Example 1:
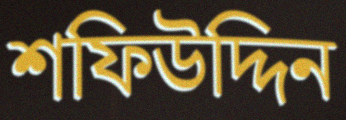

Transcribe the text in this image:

শফিউদ্দিন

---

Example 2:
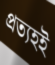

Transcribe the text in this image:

প্রত্যহই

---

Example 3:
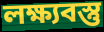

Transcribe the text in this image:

লক্ষ্যবস্তু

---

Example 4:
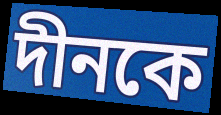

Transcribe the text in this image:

দীনকে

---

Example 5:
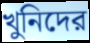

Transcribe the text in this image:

খুনিদের